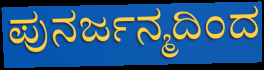
ಪುನರ್ಜನ್ಮದಿಂದ